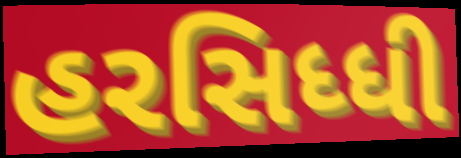
હરસિધ્ધી